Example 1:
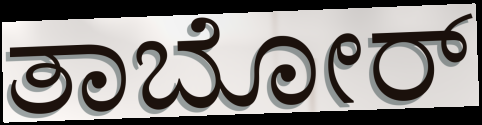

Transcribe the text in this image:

ತಾಬೋರ್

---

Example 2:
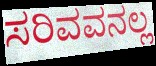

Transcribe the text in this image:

ಸರಿವವನಲ್ಲ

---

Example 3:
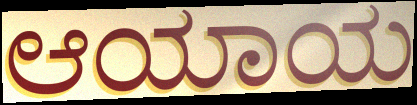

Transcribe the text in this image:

ಆಯಾಯ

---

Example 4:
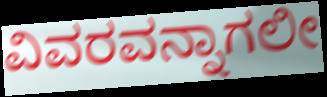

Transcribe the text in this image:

ವಿವರವನ್ನಾಗಲೀ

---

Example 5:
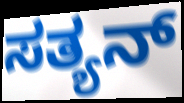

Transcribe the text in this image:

ಸತ್ಯನ್